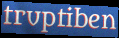
truptiben